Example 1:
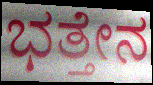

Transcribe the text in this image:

ಭತ್ತೇನ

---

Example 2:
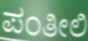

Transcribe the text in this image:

ಪಂತೀಲಿ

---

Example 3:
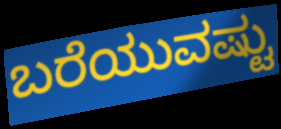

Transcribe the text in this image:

ಬರೆಯುವಷ್ಟು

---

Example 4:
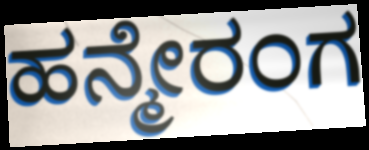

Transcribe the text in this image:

ಹನ್ಮೇರಂಗ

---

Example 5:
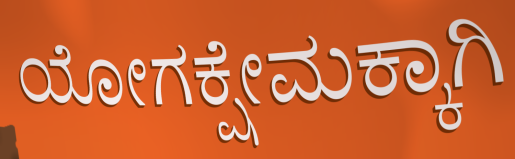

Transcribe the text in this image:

ಯೋಗಕ್ಷೇಮಕ್ಕಾಗಿ